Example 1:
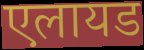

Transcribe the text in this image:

एलायड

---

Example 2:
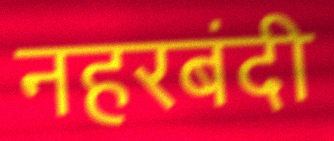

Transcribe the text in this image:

नहरबंदी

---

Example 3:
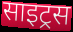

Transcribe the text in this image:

साइट्रस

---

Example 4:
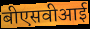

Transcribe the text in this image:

बीएसवीआई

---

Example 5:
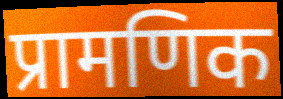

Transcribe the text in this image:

प्रामणिक